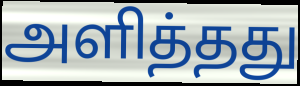
அளித்தது